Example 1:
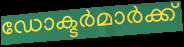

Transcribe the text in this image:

ഡോക്ടർമാർക്ക്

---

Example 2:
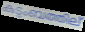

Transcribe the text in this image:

കുടുംബത്തില്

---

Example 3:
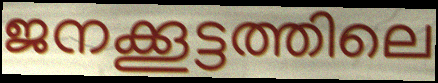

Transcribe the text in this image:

ജനക്കൂട്ടത്തിലെ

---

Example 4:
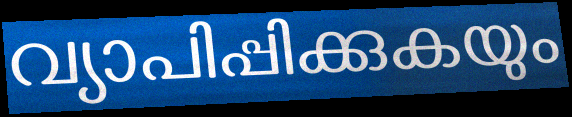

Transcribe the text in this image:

വ്യാപിപ്പിക്കുകയും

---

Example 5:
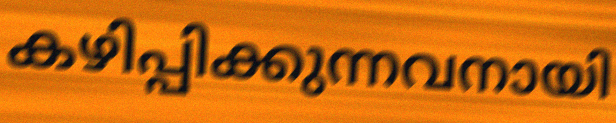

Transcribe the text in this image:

കഴിപ്പിക്കുന്നവനായി